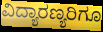
ವಿದ್ಯಾರಣ್ಯರಿಗೂ